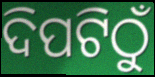
ଦିପଟିଠୁଁ